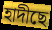
হাদীছে